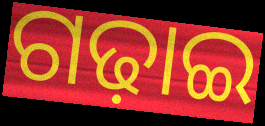
ଗଢ଼ାଇ